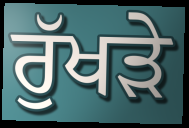
ਰੁੱਖੜੇ